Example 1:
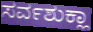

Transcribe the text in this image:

ಸರ್ವಶುಕ್ಲಾ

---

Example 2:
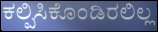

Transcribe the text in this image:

ಕಲ್ಪಿಸಿಕೊಂಡಿರಲಿಲ್ಲ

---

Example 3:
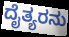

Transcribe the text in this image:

ದೈತ್ಯರನು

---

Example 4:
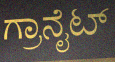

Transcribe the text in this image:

ಗ್ರಾನೈಟ್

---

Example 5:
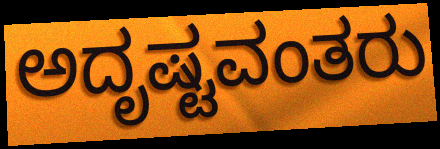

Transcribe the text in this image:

ಅದೃಷ್ಟವಂತರು